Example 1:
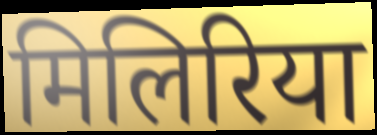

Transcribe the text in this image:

मिलिरिया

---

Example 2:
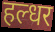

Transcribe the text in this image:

हल्धर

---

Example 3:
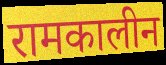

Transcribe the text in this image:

रामकालीन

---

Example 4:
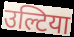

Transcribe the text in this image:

उल्टिया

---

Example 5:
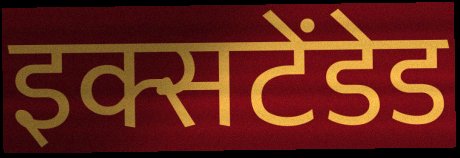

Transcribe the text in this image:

इक्सटेंडेड